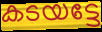
കടയട്ടേ